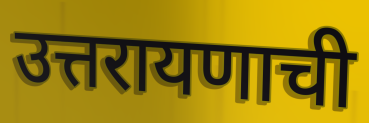
उत्तरायणाची